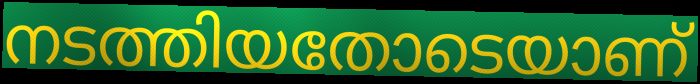
നടത്തിയതോടെയാണ്